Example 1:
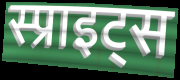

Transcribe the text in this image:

स्प्राइट्स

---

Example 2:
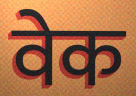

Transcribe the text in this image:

वेक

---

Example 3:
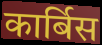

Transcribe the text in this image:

कार्बिस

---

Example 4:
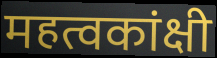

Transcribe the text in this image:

महत्वकांक्षी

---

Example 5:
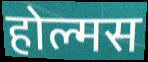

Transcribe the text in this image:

होल्मस